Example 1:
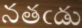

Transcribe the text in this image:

నతఁడు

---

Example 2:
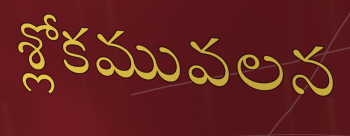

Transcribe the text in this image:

శ్లోకమువలన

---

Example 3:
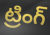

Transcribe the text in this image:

ట్రింగ్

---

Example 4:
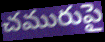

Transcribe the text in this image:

చమురుపై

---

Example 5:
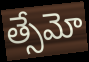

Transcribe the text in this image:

త్సేమో